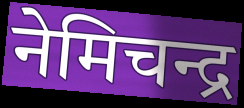
नेमिचन्द्र